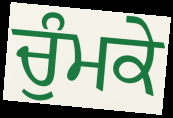
ਚੁੰਮਕੇ